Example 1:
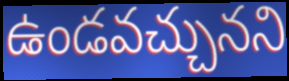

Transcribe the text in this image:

ఉండవచ్చునని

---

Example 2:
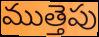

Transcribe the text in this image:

ముత్తెపు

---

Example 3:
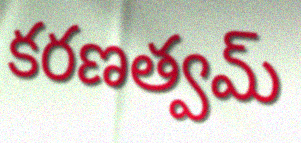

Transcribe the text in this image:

కరణత్వమ్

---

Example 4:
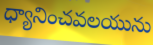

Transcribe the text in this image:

ధ్యానించవలయును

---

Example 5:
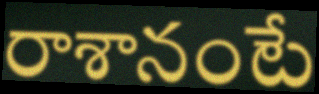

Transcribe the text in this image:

రాశానంటే